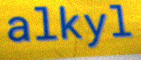
alkyl